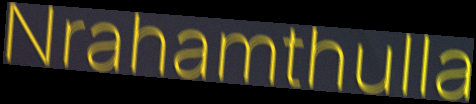
Nrahamthulla